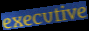
executive